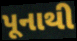
પૂનાથી